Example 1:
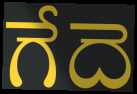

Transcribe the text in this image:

గేదె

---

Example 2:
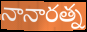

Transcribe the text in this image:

నానారత్న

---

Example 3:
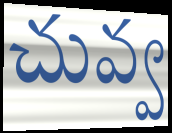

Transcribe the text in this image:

చువ్వ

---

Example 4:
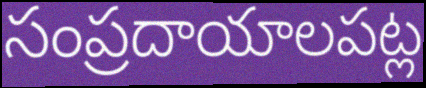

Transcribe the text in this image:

సంప్రదాయాలపట్ల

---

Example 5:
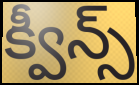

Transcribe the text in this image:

క్వీన్స్